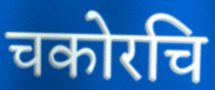
चकोरचि